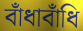
বাঁধাবাঁধি